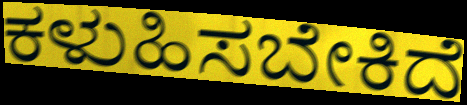
ಕಳುಹಿಸಬೇಕಿದೆ